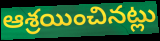
ఆశ్రయించినట్లు